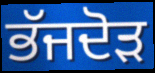
ਭੱਜਦੋੜ